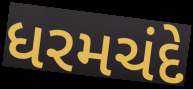
ધરમચંદે